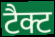
टैक्ट